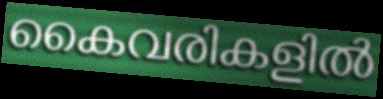
കൈവരികളിൽ